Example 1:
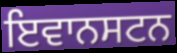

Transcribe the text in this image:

ਇਵਾਨਸਟਨ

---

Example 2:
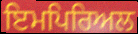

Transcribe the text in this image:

ਇਮਪਿਰਿਅਲ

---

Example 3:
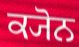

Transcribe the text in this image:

ਕ੍ਯੋਨ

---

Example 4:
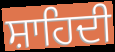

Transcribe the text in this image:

ਸ਼ਾਹਿਦੀ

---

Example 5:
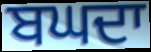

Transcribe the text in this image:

ਬਘਦਾ